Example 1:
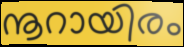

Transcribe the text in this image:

നൂറായിരം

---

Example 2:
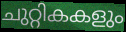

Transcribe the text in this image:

ചുറ്റികകളും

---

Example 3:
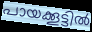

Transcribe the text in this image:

പായക്കൂട്ടിൽ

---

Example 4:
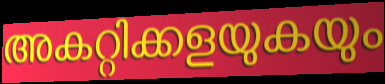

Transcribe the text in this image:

അകറ്റിക്കളയുകയും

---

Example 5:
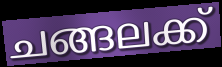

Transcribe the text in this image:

ചങ്ങലക്ക്